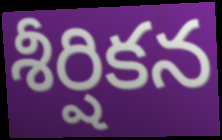
శీర్షికన